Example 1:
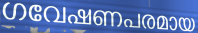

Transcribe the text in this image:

ഗവേഷണപരമായ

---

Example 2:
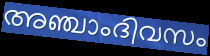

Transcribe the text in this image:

അഞ്ചാംദിവസം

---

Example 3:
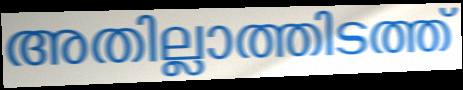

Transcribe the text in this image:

അതില്ലാത്തിടത്ത്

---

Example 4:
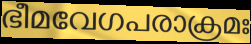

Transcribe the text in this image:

ഭീമവേഗപരാക്രമഃ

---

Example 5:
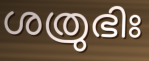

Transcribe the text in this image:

ശത്രുഭിഃ